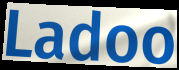
Ladoo